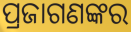
ପ୍ରଜାଗଣଙ୍କର